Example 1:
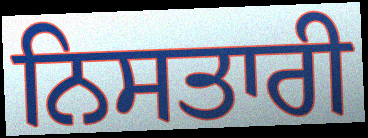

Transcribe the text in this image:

ਨਿਸਤਾਰੀ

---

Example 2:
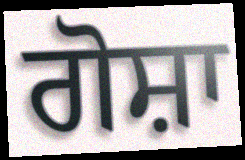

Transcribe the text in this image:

ਗੋਸ਼ਾ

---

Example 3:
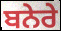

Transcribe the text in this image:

ਬਨੇਰੇ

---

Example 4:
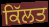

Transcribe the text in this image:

ਕਿੱਲਤ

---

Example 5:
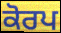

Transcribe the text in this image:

ਕੋਰਪ